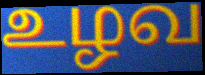
உழவ